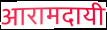
आरामदायी